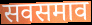
सवसमाव